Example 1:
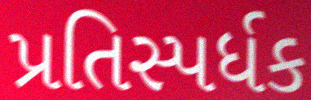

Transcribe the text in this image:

પ્રતિસ્પર્ધક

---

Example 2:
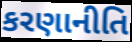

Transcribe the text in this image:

કરણાનીતિ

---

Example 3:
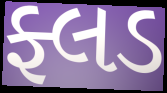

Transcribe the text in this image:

ફ્લડ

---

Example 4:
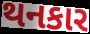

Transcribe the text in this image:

થનકાર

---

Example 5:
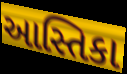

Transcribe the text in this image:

આસ્તિકા